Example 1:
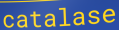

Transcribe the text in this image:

catalase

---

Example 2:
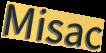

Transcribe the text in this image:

Misac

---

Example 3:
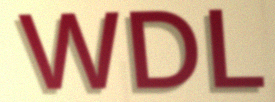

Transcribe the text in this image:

WDL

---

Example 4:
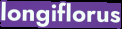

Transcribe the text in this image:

longiflorus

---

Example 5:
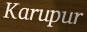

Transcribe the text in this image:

Karupur